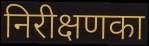
निरीक्षणका